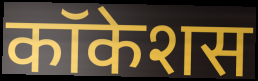
कॉकेशस